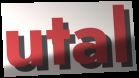
utal